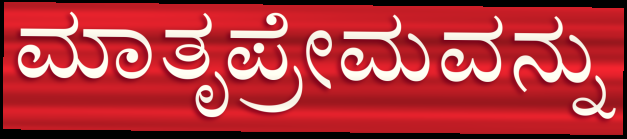
ಮಾತೃಪ್ರೇಮವನ್ನು